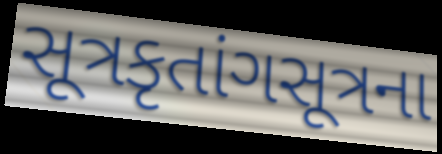
સૂત્રકૃતાંગસૂત્રના